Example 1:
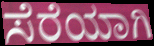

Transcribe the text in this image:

ಸೆರೆಯಾಗಿ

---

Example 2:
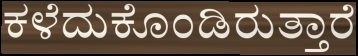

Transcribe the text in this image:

ಕಳೆದುಕೊಂಡಿರುತ್ತಾರೆ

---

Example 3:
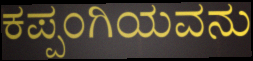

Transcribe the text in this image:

ಕಪ್ಪಂಗಿಯವನು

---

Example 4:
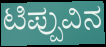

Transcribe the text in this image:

ಟಿಪ್ಪುವಿನ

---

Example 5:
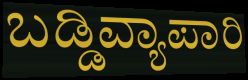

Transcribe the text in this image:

ಬಡ್ಡಿವ್ಯಾಪಾರಿ